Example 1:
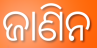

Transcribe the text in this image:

ଜାଣିନ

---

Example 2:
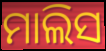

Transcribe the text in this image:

ମାଲିସ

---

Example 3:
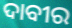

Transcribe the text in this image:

ଦାବୀର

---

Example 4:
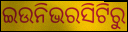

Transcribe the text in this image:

ଇଉନିଭରସିଟିରୁ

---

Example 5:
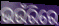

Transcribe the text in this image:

ଭଉଁରିରେ